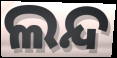
ଲନ୍ଦ